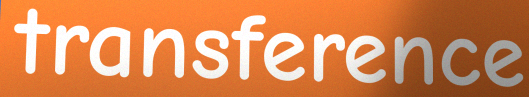
transference